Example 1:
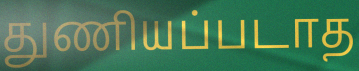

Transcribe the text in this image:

துணியப்படாத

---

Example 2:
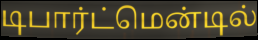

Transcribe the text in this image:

டிபார்ட்மென்டில்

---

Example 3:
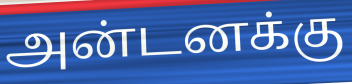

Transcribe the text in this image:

அன்டனக்கு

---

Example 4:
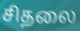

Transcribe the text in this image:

சிதலை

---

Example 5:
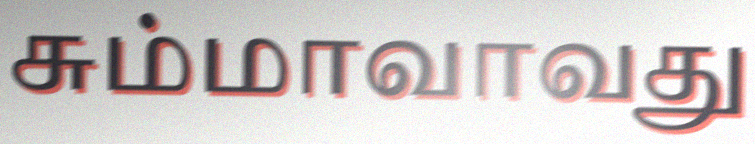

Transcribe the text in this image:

சும்மாவாவது